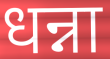
धन्ना